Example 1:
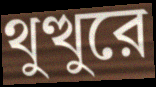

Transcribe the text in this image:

থুত্থুরে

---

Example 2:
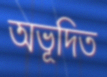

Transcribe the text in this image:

অভূদিত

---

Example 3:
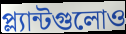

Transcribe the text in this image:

প্ল্যান্টগুলোও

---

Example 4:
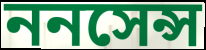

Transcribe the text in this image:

ননসেন্স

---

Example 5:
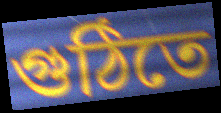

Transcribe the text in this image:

গুঠিতে